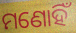
ମଣୋହିଁ